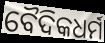
ବୈଦିକଧର୍ମ